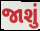
જાશું